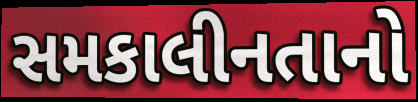
સમકાલીનતાનો